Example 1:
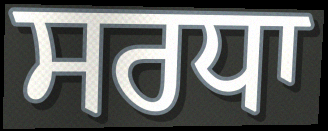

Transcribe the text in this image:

ਸਰਧਾ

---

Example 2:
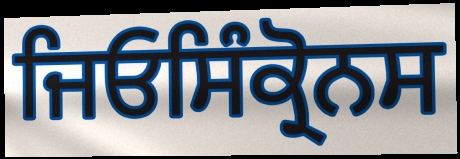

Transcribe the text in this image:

ਜਿਓਸਿੰਕ੍ਰੋਨਸ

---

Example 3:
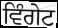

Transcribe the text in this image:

ਵਿੰਗੇਟ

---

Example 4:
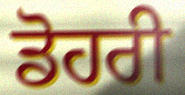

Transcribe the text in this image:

ਡੋਹਰੀ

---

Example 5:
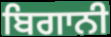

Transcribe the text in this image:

ਬਿਗਾਨੀ